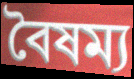
বৈষম্য